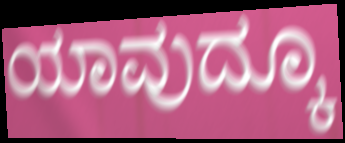
ಯಾವುದ್ಕೂ